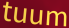
tuum